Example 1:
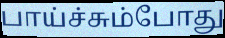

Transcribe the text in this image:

பாய்ச்சும்போது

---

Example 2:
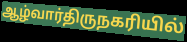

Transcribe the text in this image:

ஆழ்வார்திருநகரியில்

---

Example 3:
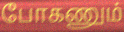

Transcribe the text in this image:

போகணும்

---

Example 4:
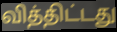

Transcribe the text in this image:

வித்திட்டது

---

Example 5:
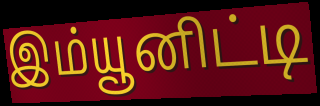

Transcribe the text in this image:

இம்யூனிட்டி